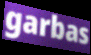
garbas